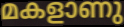
മകളാണു